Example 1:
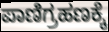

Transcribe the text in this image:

ಪಾಣಿಗ್ರಹಣಕ್ಕೆ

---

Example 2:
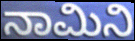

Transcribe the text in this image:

ನಾಮಿನಿ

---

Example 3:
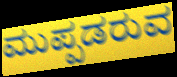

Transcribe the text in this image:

ಮುಪ್ಪಡರುವ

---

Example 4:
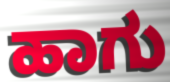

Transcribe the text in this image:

ಹಾಗು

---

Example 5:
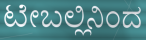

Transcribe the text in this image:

ಟೇಬಲ್ಲಿನಿಂದ